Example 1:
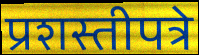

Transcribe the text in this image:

प्रशस्तीपत्रे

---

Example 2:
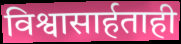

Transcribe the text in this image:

विश्वासार्हताही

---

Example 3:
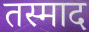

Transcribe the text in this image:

तस्माद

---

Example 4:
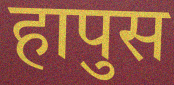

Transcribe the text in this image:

हापुस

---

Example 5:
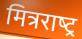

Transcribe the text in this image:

मित्रराष्ट्र